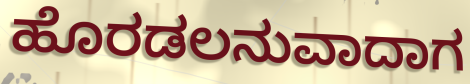
ಹೊರಡಲನುವಾದಾಗ